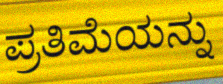
ಪ್ರತಿಮೆಯನ್ನು